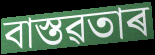
বাস্তৱতাৰ